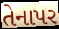
તેનાપર